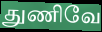
துணிவே